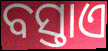
ବସ୍ତାଏ